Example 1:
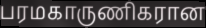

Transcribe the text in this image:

பரமகாருணிகரான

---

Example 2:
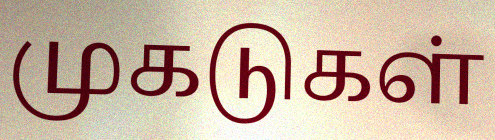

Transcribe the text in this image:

முகடுகள்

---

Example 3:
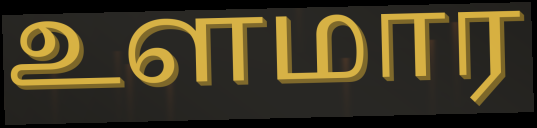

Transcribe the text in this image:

உளமார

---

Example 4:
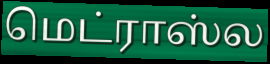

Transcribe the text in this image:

மெட்ராஸ்ல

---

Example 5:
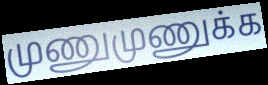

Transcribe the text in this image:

முணுமுணுக்க